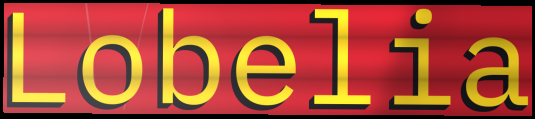
Lobelia